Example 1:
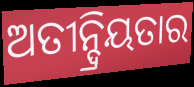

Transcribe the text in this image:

ଅତୀନ୍ଦ୍ରିୟତାର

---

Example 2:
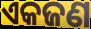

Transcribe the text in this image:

ଏକଜଣ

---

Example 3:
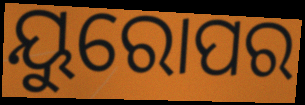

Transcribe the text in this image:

ୟୁରୋପର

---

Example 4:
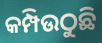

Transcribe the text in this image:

କମ୍ପିଉଠୁଛି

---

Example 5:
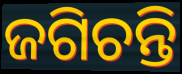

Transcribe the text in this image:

ଜଗିଚନ୍ତି